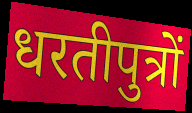
धरतीपुत्रों